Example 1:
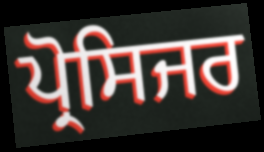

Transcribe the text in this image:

ਪ੍ਰੋਸਿਜਰ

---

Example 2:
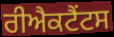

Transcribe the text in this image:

ਰੀਐਕਟੈਂਟਸ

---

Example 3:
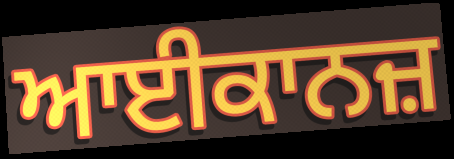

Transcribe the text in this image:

ਆਈਕਾਨਜ਼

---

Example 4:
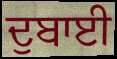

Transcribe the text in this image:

ਦੁਬਾਈ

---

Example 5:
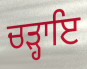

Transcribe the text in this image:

ਚੜ੍ਹਾਇ